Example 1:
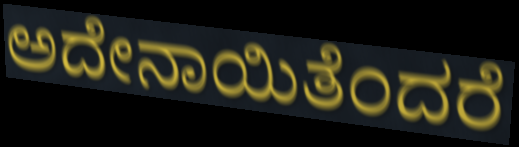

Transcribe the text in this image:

ಅದೇನಾಯಿತೆಂದರೆ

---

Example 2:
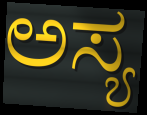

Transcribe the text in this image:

ಅಸ್ಯ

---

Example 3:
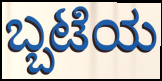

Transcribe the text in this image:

ಬ್ಬಟೆಯ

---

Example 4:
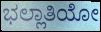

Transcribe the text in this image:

ಭಲ್ಲಾತಿಯೋ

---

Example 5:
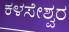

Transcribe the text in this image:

ಕಳಸೇಶ್ವರ